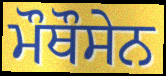
ਮੌਥੌਸੇਨ